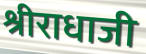
श्रीराधाजी